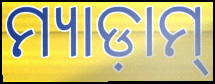
ମ୍ୟାଡ଼ାମ୍